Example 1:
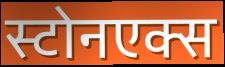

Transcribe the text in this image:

स्टोनएक्स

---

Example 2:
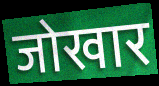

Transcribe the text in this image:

जोखार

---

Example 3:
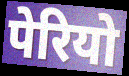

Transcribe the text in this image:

पेरियो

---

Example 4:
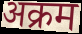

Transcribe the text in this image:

अक्रम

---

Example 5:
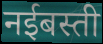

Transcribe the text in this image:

नईबस्ती